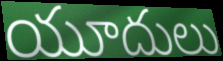
యూదులు